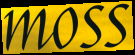
moss